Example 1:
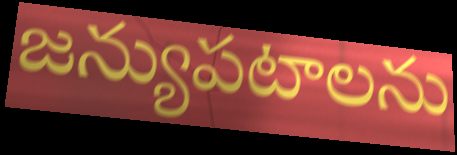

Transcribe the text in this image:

జన్యుపటాలను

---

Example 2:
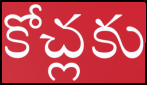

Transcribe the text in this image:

కోచ్లకు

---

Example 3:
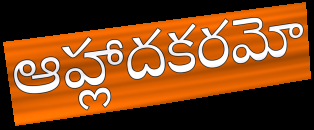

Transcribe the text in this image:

ఆహ్లాదకరమో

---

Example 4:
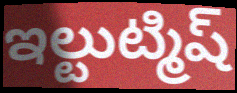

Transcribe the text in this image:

ఇల్టుట్మిష్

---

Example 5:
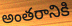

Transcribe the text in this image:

అంతరానికి